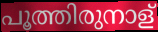
പൂത്തിരുനാള്